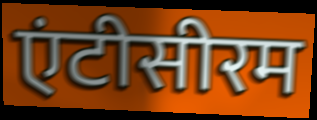
एंटीसीरम